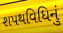
શપથવિધિનું